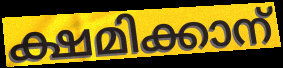
ക്ഷമിക്കാന്